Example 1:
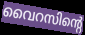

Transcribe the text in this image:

വൈറസിന്റെ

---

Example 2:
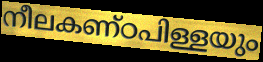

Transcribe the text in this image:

നീലകണ്ഠപിള്ളയും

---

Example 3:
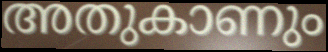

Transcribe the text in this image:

അതുകാണും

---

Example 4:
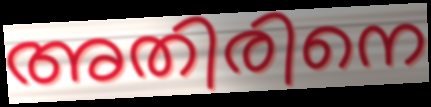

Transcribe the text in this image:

അതിരിനെ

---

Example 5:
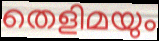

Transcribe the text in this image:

തെളിമയും